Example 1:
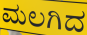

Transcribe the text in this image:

ಮಲಗಿದ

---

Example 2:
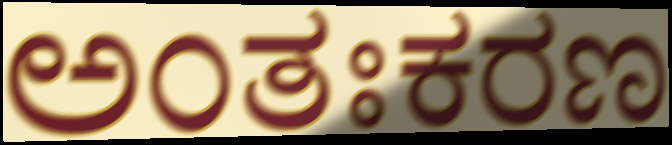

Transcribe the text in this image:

ಅಂತಃಕರಣ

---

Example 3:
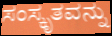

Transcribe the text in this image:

ಸಂಸ್ಕೃತವನ್ನು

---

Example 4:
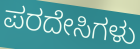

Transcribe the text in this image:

ಪರದೇಸಿಗಳು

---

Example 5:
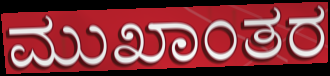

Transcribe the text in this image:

ಮುಖಾಂತರ